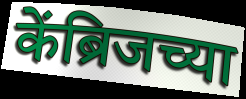
केंब्रिजच्या